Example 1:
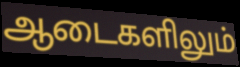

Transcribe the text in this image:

ஆடைகளிலும்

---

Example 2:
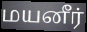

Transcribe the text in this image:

மயனீர்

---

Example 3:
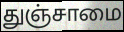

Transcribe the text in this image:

துஞ்சாமை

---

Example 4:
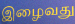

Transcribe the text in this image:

இழைவது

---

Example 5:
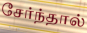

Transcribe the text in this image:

சேர்ந்தால்